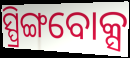
ସ୍ପ୍ରିଙ୍ଗବୋକ୍ସ